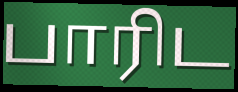
பாரிட